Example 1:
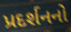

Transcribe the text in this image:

પ્રદર્શનનો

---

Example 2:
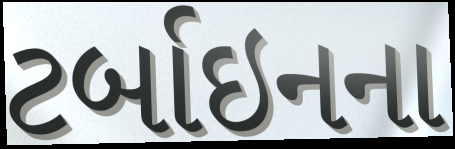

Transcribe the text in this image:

ટર્બાઇનના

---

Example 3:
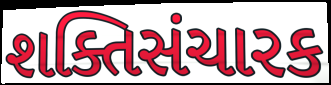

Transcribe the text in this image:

શક્તિસંચારક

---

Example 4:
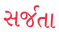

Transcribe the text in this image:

સર્જતા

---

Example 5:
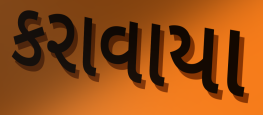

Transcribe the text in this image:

કરાવાયા